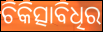
ଚିକିତ୍ସାବିଧିର